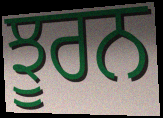
ਝੂਰਨ